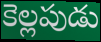
కెల్లపుడు